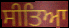
ਸੀਤਿਆ